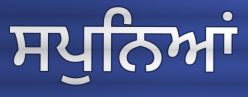
ਸਪੁਨਿਆਂ